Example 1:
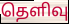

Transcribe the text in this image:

தெளிவு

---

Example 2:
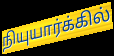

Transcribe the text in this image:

நியுயார்க்கில்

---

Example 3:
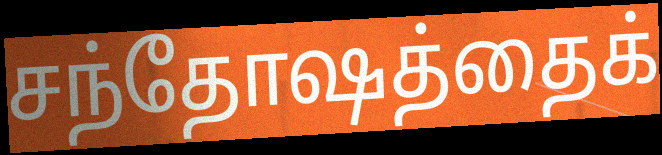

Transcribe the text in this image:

சந்தோஷத்தைக்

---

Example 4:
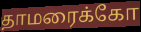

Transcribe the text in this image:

தாமரைக்கோ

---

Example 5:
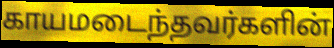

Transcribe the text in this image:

காயமடைந்தவர்களின்